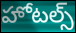
హోటల్స్